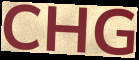
CHG